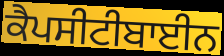
ਕੈਪਸੀਟੀਬਾਈਨ